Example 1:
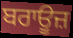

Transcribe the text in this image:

ਬਰਾਊਜ਼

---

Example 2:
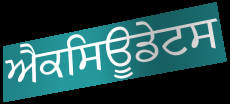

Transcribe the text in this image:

ਐਕਸਿਊਡੇਟਸ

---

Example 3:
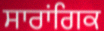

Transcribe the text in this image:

ਸਾਰਾਂਗਿਕ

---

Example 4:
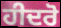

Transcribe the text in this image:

ਹੀਦਰੋ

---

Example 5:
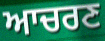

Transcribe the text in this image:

ਆਚਰਣ